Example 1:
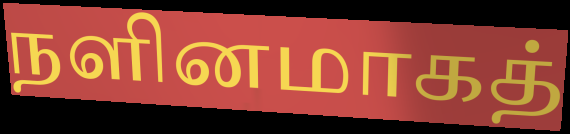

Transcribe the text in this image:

நளினமாகத்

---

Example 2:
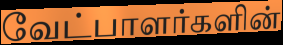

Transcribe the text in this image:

வேட்பாளர்களின்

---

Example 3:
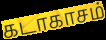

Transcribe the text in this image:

கடாகாசம்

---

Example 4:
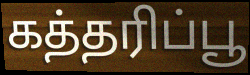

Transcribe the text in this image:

கத்தரிப்பூ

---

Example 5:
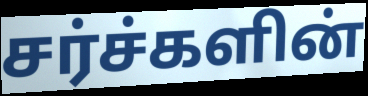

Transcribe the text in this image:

சர்ச்களின்